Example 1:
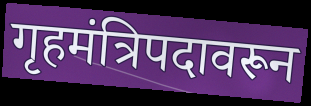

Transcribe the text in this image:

गृहमंत्रिपदावरून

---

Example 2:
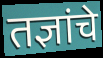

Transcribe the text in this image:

तज्ञांचे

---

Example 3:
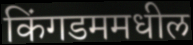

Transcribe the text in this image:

किंगडममधील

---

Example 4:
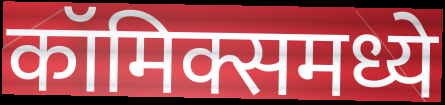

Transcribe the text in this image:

कॉमिक्समध्ये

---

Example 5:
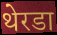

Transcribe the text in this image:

थेरडा